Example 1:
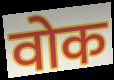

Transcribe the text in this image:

वोक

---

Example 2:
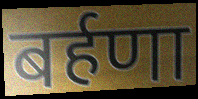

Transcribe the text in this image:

बर्हणा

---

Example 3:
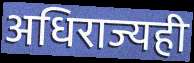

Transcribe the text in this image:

अधिराज्यही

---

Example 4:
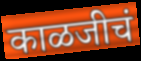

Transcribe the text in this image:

काळजीचं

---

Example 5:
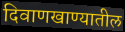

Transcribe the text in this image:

दिवाणखाण्यातील